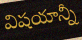
విషయాన్నీ